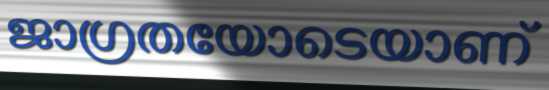
ജാഗ്രതയോടെയാണ്